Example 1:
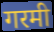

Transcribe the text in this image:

गरमी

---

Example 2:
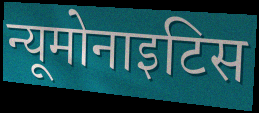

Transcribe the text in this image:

न्यूमोनाइटिस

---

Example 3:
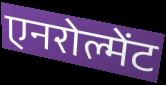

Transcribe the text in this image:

एनरोल्मेंट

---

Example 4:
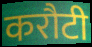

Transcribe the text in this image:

करौटी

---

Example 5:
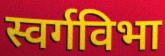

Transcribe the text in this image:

स्वर्गविभा